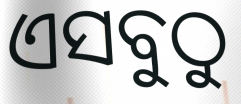
ଏସବୁଠୁ